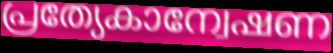
പ്രത്യേകാന്വേഷണ